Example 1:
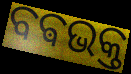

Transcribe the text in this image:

ବଵଭକ୍ତ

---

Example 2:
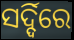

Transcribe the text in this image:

ସର୍ଦ୍ଦିରେ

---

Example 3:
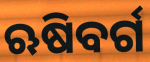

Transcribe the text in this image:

ଋଷିବର୍ଗ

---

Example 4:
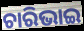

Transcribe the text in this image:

ଚାରିଭାଇ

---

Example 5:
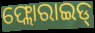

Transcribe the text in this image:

ଫ୍ଲୋରାଇଡ୍